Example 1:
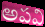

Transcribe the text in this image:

అపవి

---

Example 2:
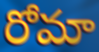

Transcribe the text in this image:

రోమా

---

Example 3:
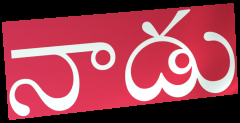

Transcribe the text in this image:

నాడు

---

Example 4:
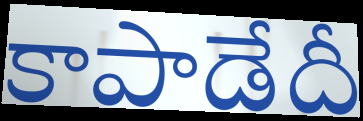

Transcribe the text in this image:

కాపాడేదీ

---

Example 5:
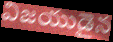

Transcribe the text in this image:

విజయుడైన